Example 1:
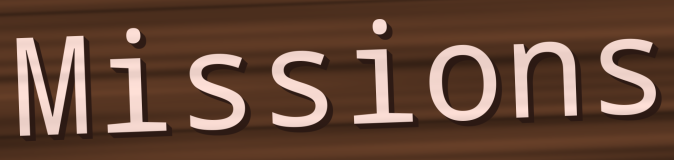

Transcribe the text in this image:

Missions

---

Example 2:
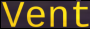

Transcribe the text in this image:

Vent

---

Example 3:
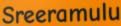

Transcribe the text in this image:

Sreeramulu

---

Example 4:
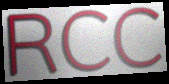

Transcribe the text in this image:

RCC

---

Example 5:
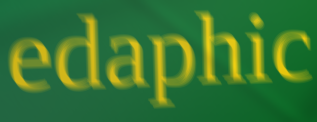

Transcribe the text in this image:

edaphic